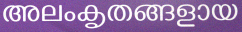
അലംകൃതങ്ങളായ